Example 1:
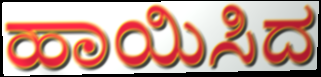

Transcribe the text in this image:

ಹಾಯಿಸಿದ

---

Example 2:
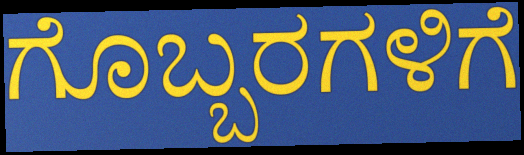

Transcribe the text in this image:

ಗೊಬ್ಬರಗಳಿಗೆ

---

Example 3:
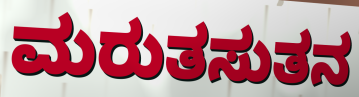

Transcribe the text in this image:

ಮರುತಸುತನ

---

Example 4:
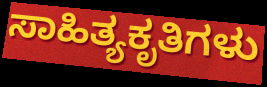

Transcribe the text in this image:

ಸಾಹಿತ್ಯಕೃತಿಗಳು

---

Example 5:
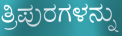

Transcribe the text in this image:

ತ್ರಿಪುರಗಳನ್ನು